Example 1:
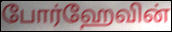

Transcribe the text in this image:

போர்ஹேவின்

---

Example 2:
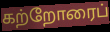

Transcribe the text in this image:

கற்றோரைப்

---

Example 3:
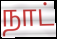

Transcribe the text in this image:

நாட்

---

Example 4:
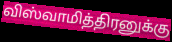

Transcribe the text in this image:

விஸ்வாமித்திரனுக்கு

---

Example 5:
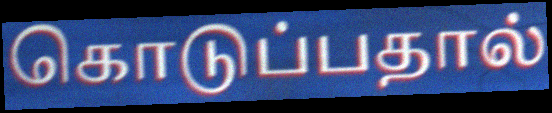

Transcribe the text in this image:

கொடுப்பதால்